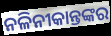
ନଳିନୀକାନ୍ତଙ୍କର